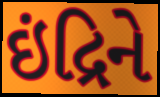
ઇંદ્રિને